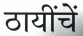
ठायींचें